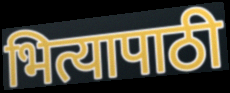
भित्यापाठी